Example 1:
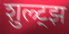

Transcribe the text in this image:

शुल्ट्झ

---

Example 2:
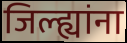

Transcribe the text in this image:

जिल्ह्यांना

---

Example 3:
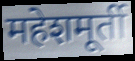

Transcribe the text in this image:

महेशमूर्ती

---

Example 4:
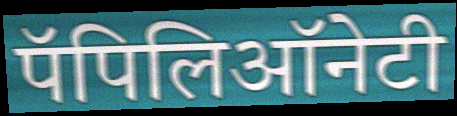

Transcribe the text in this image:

पॅपिलिऑनेटी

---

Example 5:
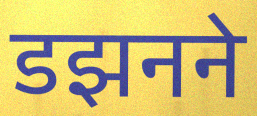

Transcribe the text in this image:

डझनने